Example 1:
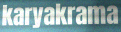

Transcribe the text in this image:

karyakrama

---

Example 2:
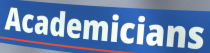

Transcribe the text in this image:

Academicians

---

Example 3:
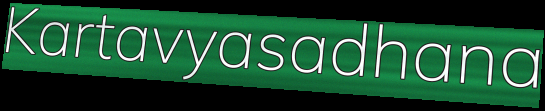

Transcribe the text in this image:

Kartavyasadhana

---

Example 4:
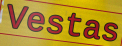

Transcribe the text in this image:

Vestas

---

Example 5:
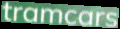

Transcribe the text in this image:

tramcars